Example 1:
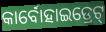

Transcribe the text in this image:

କାର୍ବୋହାଇଡ୍ରେଟ୍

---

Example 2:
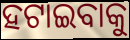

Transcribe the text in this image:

ହଟାଇବାକୁ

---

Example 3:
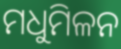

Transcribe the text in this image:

ମଧୁମିଳନ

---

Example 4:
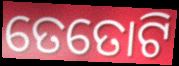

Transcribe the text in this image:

ତେତୋଟି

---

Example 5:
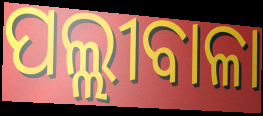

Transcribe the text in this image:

ପଲ୍ଲୀବାଳା